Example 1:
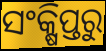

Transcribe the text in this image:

ସଂକ୍ଷିପ୍ତରୁ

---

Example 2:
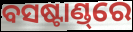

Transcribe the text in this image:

ବସଷ୍ଟାଣ୍ଡ୍‌ରେ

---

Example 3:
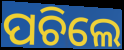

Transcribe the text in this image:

ପଚିଲେ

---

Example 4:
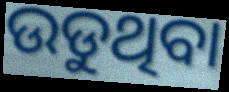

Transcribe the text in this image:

ଉଡୁଥିବା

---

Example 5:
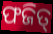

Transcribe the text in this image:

ଫଜିତ୍